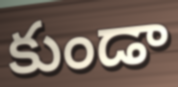
కుండా